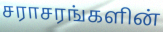
சராசரங்களின்